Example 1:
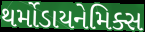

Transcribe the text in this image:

થર્મોડાયનેમિક્સ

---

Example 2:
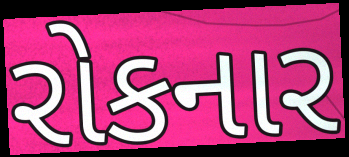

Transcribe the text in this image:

રોકનાર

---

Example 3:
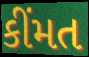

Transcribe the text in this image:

કીંમત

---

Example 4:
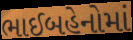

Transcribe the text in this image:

ભાઈબહેનોમાં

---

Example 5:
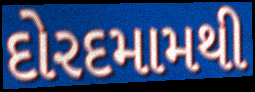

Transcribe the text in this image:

દોરદમામથી